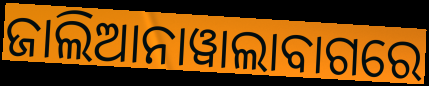
ଜାଲିଆନାୱାଲାବାଗରେ